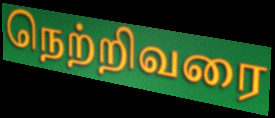
நெற்றிவரை